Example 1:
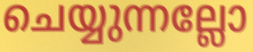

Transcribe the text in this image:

ചെയ്യുന്നല്ലോ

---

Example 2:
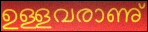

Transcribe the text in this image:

ഉള്ളവരാണു്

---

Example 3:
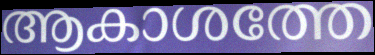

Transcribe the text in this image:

ആകാശത്തേ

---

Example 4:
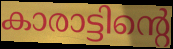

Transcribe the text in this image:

കാരാട്ടിന്റെ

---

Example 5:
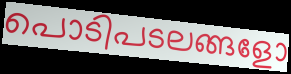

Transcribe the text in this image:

പൊടിപടലങ്ങളോ